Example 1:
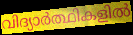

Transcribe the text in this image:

വിദ്യാർത്ഥികളിൽ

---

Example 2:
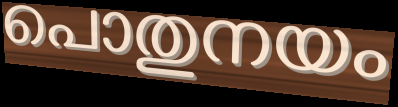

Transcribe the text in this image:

പൊതുനയം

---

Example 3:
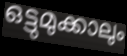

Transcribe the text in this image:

ഒട്ടുമുക്കാലും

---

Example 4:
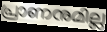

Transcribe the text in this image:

പ്രാണനുമില്ല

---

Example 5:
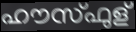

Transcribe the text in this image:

ഹൗസ്ഫുള്